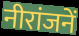
नीरांजनें